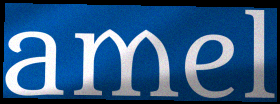
amel